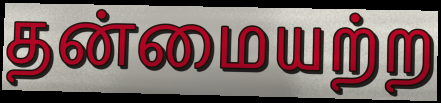
தன்மையற்ற